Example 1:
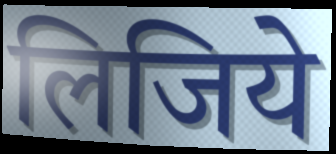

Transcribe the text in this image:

लिजिये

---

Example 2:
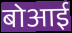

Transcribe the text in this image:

बोआई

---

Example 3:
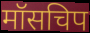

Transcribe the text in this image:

मॉसचिप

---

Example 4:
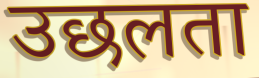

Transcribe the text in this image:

उछलता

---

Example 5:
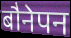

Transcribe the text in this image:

बौनेपन